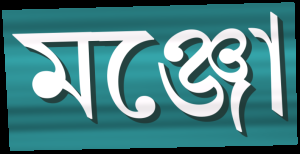
মঞ্জো